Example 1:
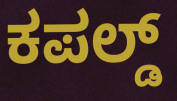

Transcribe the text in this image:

ಕಪಲ್ಡ್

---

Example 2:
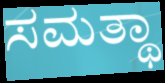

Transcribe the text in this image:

ಸಮತ್ಥಾ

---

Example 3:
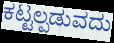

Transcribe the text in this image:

ಕಟ್ಟಲ್ಪಡುವದು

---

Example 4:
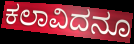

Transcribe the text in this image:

ಕಲಾವಿದನೂ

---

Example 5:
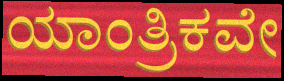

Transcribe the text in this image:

ಯಾಂತ್ರಿಕವೇ